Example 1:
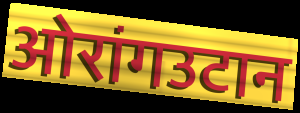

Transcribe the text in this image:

ओरांगउटान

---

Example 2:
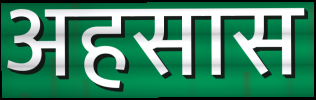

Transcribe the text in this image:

अहसास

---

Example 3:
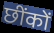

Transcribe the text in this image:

छींकों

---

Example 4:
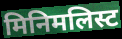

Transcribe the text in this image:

मिनिमलिस्ट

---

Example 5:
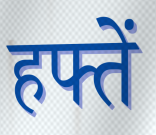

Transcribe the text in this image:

हफ्तें